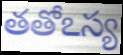
తతోఽస్య